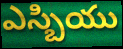
ఎస్బియు